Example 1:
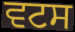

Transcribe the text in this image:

ਵਟਸ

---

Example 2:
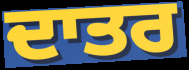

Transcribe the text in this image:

ਦਾਤਰ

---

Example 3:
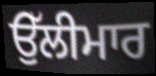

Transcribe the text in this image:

ਉੱਲੀਮਾਰ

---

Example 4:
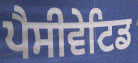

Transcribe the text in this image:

ਪੈਸੀਵੇਟਿਡ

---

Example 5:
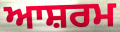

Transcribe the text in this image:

ਆਸ਼ਰਮ